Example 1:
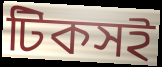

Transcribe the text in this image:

টিকসই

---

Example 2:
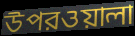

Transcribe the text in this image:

উপরওয়ালা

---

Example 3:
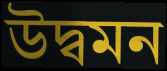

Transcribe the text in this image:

উদ্বমন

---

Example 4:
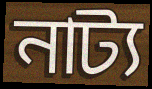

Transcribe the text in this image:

নাট্য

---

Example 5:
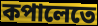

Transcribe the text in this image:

কপালেতে